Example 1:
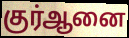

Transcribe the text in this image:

குர்ஆனை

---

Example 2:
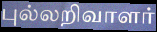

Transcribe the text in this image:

புல்லறிவாளர்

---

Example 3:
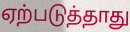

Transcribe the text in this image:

ஏற்படுத்தாது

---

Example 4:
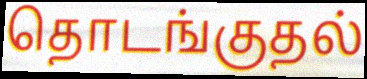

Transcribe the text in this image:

தொடங்குதல்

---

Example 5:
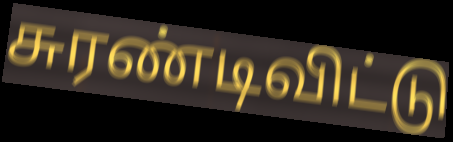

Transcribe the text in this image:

சுரண்டிவிட்டு